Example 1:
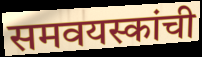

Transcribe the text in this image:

समवयस्कांची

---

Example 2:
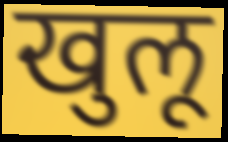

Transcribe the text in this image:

खुलू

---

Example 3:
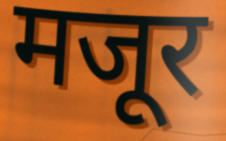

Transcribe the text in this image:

मजूर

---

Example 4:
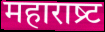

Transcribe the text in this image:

महाराष्र्ट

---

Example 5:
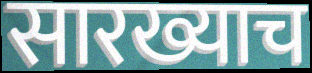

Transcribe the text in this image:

सारख्याच